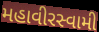
મહાવીરસ્વામી